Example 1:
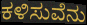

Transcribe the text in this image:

ಕಳಿಸುವೆನು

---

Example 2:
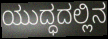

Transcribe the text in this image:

ಯುದ್ಧದಲ್ಲಿನ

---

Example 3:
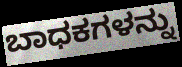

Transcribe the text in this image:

ಬಾಧಕಗಳನ್ನು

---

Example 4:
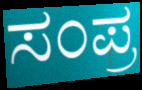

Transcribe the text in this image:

ಸಂಪ್ರ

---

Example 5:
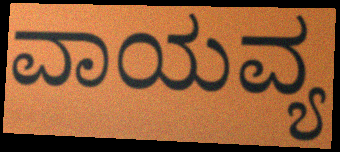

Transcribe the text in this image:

ವಾಯವ್ಯ